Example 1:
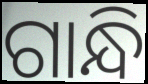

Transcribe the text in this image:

ଗାନ୍ଧି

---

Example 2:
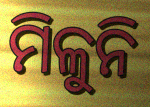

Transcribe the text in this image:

ମିଳୁନି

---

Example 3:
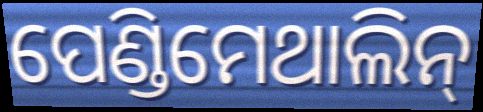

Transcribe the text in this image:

ପେଣ୍ଡିମେଥାଲିନ୍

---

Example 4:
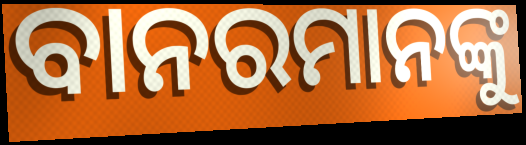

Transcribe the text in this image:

ବାନରମାନଙ୍କୁ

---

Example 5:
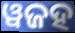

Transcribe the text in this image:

ୱଜହ